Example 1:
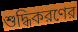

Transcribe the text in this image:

শুদ্ধিকরণের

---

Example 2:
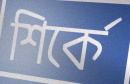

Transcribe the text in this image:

শির্কে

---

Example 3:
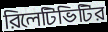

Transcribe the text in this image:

রিলেটিভিটির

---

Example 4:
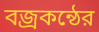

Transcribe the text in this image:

বজ্রকন্ঠের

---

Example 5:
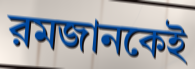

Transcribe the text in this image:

রমজানকেই